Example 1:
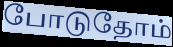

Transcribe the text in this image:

போடுதோம்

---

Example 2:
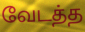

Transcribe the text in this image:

வேடத்த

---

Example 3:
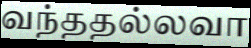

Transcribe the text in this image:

வந்ததல்லவா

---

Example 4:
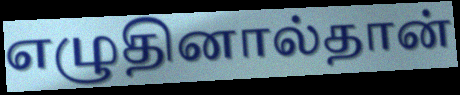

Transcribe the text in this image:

எழுதினால்தான்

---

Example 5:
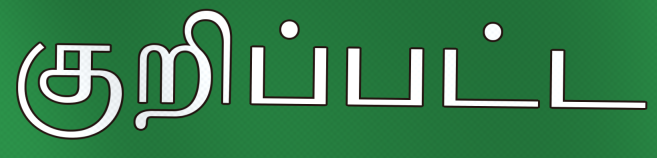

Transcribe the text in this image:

குறிப்பட்ட